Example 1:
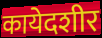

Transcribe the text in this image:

कायेदशीर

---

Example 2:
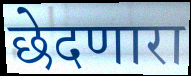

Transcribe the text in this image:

छेदणारा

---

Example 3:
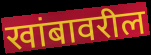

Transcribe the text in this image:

खांबावरील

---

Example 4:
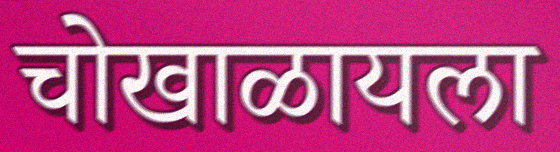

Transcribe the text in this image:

चोखाळायला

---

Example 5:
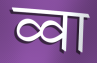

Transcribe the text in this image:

व्वा